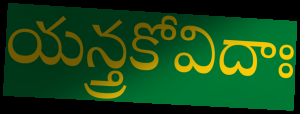
యన్త్రకోవిదాః